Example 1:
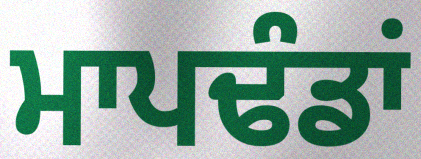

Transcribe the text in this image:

ਮਾਪਢੰਡਾਂ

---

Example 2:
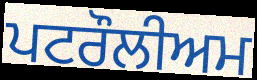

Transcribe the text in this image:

ਪਟਰੌਲੀਅਮ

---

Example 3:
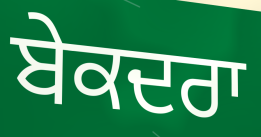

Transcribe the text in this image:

ਬੇਕਦਰਾ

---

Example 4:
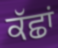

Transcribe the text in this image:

ਕੱਛਾਂ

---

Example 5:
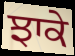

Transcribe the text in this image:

ਝਾਕੇ